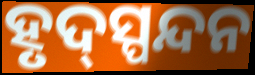
ହୃଦ୍‍ସ୍ପନ୍ଦନ